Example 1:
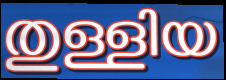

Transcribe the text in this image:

തുള്ളിയ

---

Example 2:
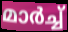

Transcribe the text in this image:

മാർച്ച്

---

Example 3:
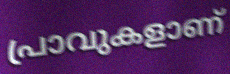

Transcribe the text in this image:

പ്രാവുകളാണ്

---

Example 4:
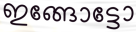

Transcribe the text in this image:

ഇങ്ങോട്ടോ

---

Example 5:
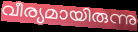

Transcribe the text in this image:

വീര്യമായിരുന്നു